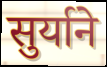
सुर्याने